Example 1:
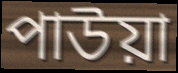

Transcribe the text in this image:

পাউয়া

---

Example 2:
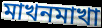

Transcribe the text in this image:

মাখনমাখা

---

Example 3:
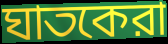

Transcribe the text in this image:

ঘাতকেরা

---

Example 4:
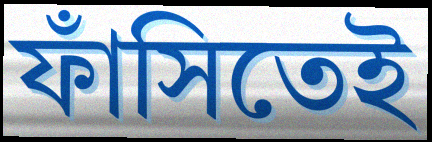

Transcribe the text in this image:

ফাঁসিতেই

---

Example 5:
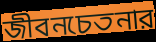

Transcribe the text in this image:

জীবনচেতনার